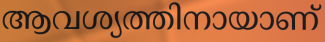
ആവശ്യത്തിനായാണ്